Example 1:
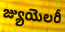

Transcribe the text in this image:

జ్యుయెలరీ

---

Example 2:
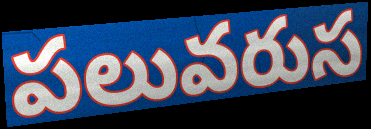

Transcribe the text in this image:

పలువరుస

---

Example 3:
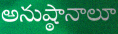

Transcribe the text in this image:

అనుష్ఠానాలూ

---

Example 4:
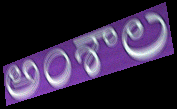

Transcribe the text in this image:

అంశాల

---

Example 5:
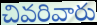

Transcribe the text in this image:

చివరివారు